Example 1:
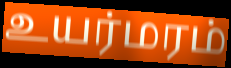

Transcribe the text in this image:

உயர்மரம்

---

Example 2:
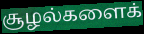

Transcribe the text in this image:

சூழல்களைக்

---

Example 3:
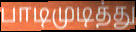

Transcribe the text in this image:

பாடிமுடித்து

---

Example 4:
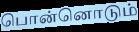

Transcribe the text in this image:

பொன்னொடும்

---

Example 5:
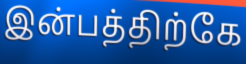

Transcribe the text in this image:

இன்பத்திற்கே